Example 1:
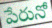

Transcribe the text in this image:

పేరునో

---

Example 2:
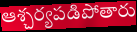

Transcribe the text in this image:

ఆశ్చర్యపడిపోతారు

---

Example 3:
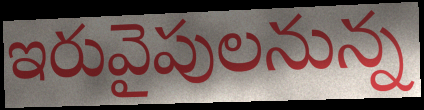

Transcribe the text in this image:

ఇరువైపులనున్న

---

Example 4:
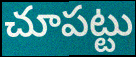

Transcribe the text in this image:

చూపట్టు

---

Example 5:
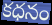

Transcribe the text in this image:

కధనం